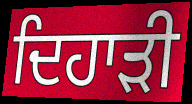
ਦਿਹਾੜੀ